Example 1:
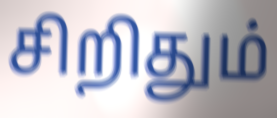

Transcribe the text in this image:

சிறிதும்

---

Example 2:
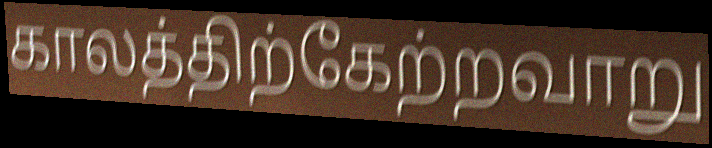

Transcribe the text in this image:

காலத்திற்கேற்றவாறு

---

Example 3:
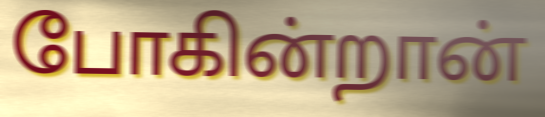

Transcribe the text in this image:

போகின்றான்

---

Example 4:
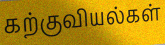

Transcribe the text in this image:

கற்குவியல்கள்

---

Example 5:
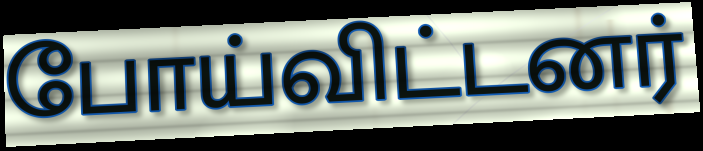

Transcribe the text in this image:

போய்விட்டனர்